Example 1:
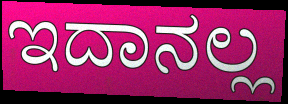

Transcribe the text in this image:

ಇದಾನಲ್ಲ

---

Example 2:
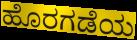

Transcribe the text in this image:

ಹೊರಗಡೆಯ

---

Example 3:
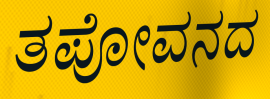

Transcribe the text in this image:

ತಪೋವನದ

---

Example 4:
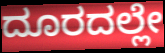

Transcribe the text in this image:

ದೂರದಲ್ಲೇ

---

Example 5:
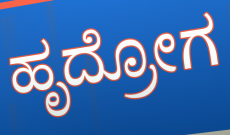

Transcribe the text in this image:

ಹೃದ್ರೋಗ